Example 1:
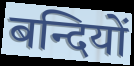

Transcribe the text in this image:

बन्दियों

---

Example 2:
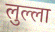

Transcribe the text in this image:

लुल्ला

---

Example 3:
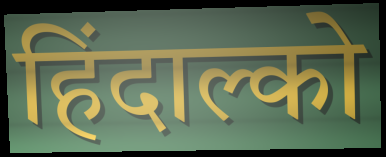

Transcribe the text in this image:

हिंदाल्को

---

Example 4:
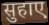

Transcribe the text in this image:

सुहाए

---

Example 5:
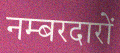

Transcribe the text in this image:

नम्बरदारों